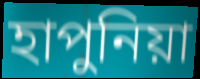
হাপুনিয়া